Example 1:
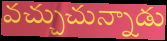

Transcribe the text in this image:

వచ్చుచున్నాడు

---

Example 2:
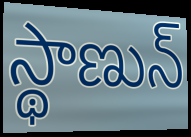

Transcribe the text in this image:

స్థాణున్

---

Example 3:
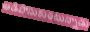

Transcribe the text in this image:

ఆడిపోసుకుంటున్నాడు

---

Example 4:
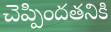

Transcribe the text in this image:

చెప్పిందతనికి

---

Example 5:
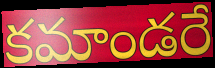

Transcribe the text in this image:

కమాండరే